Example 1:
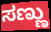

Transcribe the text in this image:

ಸಣ್ಣು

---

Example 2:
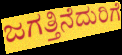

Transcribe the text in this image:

ಜಗತ್ತಿನೆದುರಿಗೆ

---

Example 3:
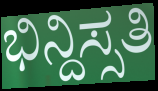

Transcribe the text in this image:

ಭಿನ್ದಿಸ್ಸತಿ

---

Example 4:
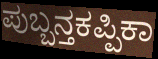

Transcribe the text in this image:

ಪುಬ್ಬನ್ತಕಪ್ಪಿಕಾ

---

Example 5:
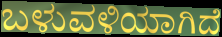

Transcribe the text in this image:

ಬಳುವಳಿಯಾಗಿದೆ